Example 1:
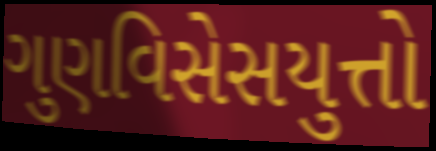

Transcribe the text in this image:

ગુણવિસેસયુત્તો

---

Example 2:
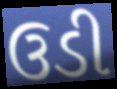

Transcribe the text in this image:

ઉડી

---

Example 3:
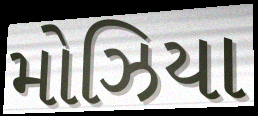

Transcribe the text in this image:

મોઝિયા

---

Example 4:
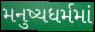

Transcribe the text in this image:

મનુષ્યધર્મમાં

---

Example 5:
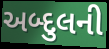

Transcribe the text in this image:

અબ્દુલની